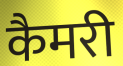
कैमरी